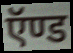
ऍण्ड